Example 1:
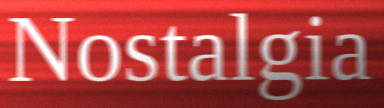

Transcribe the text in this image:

Nostalgia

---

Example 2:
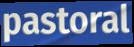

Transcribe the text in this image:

pastoral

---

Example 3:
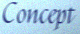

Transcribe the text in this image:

Concept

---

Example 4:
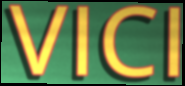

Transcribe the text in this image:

VICI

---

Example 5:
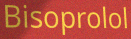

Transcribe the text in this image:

Bisoprolol